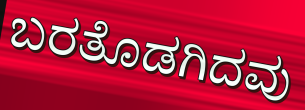
ಬರತೊಡಗಿದವು